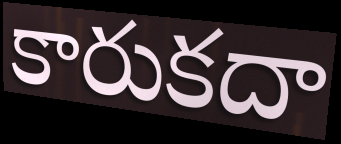
కారుకదా